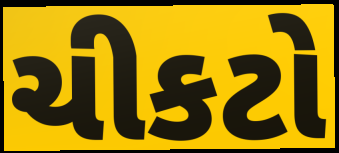
ચીકટો